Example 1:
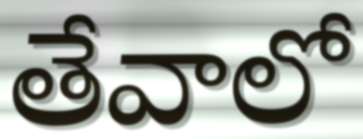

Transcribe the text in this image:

తేవాలో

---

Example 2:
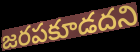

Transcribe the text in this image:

జరపకూడదని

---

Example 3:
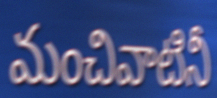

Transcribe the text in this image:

మంచివాటినీ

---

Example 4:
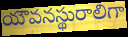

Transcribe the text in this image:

యౌవనస్థురాలిగా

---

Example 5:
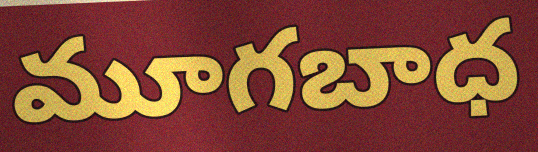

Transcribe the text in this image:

మూగబాధ